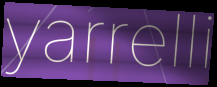
yarrelli